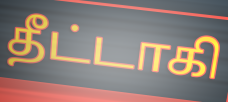
தீட்டாகி